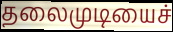
தலைமுடியைச்